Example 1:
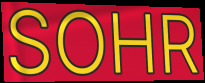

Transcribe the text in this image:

SOHR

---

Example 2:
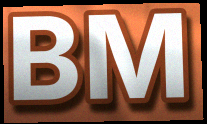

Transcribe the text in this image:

BM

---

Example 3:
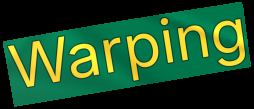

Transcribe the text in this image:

Warping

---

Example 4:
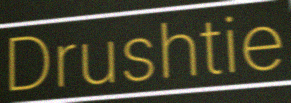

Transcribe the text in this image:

Drushtie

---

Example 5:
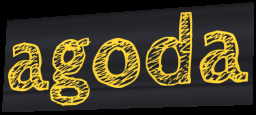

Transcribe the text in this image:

agoda